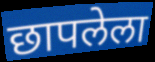
छापलेला